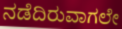
ನಡೆದಿರುವಾಗಲೇ